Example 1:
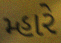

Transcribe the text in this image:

મ્હારે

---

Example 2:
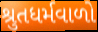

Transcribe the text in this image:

શ્રુતધર્મવાળો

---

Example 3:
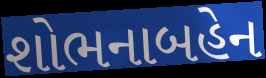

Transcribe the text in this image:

શોભનાબહેન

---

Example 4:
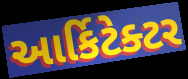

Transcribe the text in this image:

આર્કિટેક્ટર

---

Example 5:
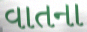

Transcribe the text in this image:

વાતના